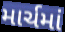
માર્ચમાં